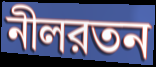
নীলরতন